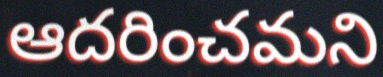
ఆదరించమని